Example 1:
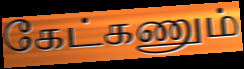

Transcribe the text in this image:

கேட்கணும்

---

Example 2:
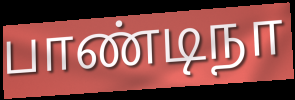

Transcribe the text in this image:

பாண்டிநா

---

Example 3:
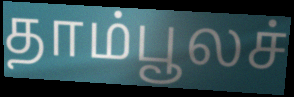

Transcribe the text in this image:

தாம்பூலச்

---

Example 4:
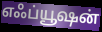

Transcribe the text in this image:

எஃப்யூஷன்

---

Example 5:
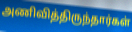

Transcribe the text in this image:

அணிவித்திருந்தார்கள்